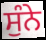
ਸੁੰਨੇ